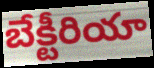
బేక్టీరియా